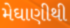
મેઘાણીથી